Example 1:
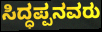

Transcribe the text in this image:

ಸಿದ್ಧಪ್ಪನವರು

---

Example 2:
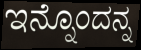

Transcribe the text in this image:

ಇನ್ನೊಂದನ್ನ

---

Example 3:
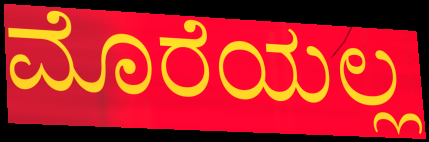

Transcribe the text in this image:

ಮೊರೆಯಲ್ಲ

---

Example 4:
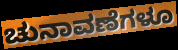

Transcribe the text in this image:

ಚುನಾವಣೆಗಳೂ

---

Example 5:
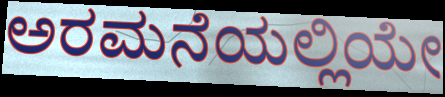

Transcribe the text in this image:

ಅರಮನೆಯಲ್ಲಿಯೇ